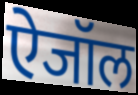
ऐजॉल